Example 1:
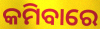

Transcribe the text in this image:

କମିବାରେ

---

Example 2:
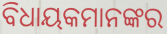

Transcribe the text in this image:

ବିଧାୟକମାନଙ୍କର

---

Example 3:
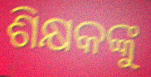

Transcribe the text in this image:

ଶିକ୍ଷକଙ୍କୁ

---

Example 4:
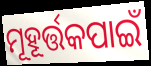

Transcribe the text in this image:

ମୂହୂର୍ତ୍ତକପାଇଁ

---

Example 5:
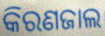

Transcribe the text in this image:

କିରଣଜାଲ